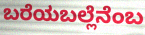
ಬರೆಯಬಲ್ಲೆನೆಂಬ